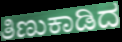
ತಿಣುಕಾಡಿದ